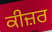
ਕੀਜ਼ਰ